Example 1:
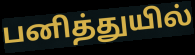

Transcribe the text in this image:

பனித்துயில்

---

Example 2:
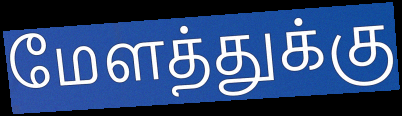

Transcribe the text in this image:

மேளத்துக்கு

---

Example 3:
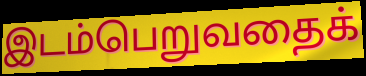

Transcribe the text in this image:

இடம்பெறுவதைக்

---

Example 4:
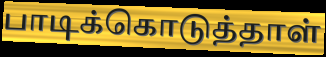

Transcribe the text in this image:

பாடிக்கொடுத்தாள்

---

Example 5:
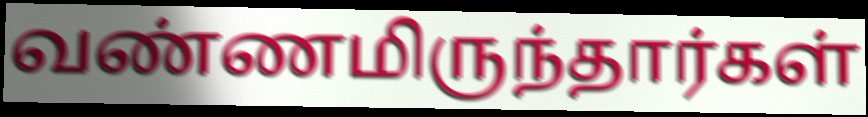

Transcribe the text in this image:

வண்ணமிருந்தார்கள்